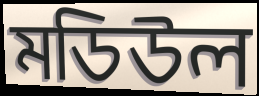
মডিউল